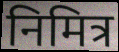
निमित्र